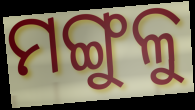
ମଙ୍ଗୁଳୁ